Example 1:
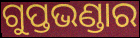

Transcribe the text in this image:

ଗୁପ୍ତଭଣ୍ଡାର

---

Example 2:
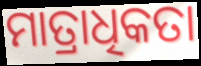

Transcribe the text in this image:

ମାତ୍ରାଧିକତା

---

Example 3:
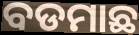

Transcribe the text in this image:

ବଡମାଛ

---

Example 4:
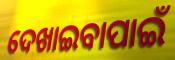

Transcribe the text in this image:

ଦେଖାଇବାପାଇଁ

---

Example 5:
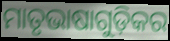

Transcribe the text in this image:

ମାତୃଭାଷାଗୁଡ଼ିକର